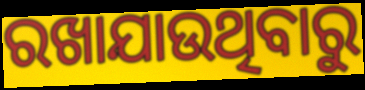
ରଖାଯାଉଥିବାରୁ